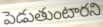
పెడుతుంటారని